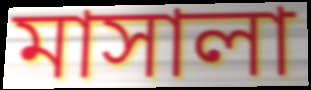
মাসালা